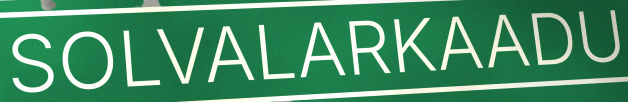
SOLVALARKAADU